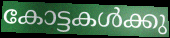
കോട്ടകൾക്കു